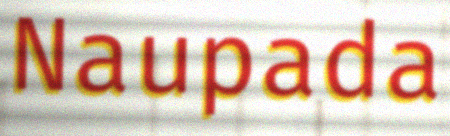
Naupada